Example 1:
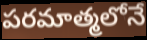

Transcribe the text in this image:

పరమాత్మలోనే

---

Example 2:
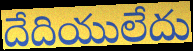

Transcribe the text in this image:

దేదియులేదు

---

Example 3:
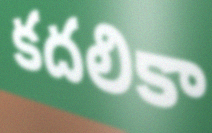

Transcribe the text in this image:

కదలికా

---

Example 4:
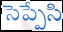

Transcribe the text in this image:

సెప్పేసి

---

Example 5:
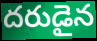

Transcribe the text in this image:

దరుడైన